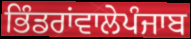
ਭਿੰਡਰਾਂਵਾਲੇਪੰਜਾਬ